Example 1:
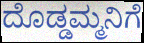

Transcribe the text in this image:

ದೊಡ್ಡಮ್ಮನಿಗೆ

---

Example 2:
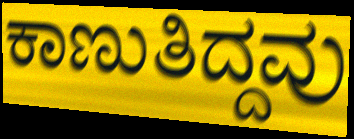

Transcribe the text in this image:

ಕಾಣುತಿದ್ದವು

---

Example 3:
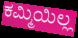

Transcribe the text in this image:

ಕಮ್ಮಿಯಿಲ್ಲ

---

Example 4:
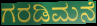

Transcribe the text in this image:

ಗರಡಿಮನೆ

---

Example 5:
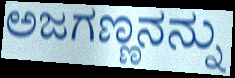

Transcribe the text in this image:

ಅಜಗಣ್ಣನನ್ನು